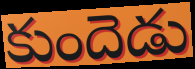
కుందెడు